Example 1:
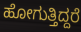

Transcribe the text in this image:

ಹೋಗುತ್ತಿದ್ದರೆ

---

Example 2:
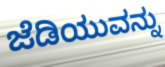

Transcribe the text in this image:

ಜೆಡಿಯುವನ್ನು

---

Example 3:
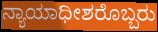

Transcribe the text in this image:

ನ್ಯಾಯಾಧೀಶರೊಬ್ಬರು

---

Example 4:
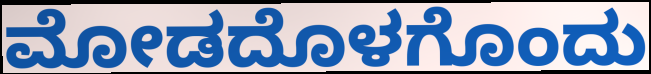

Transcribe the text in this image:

ಮೋಡದೊಳಗೊಂದು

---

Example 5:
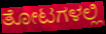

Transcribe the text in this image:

ತೋಟಗಳಲ್ಲಿ